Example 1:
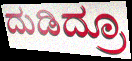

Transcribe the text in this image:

ದುಡಿದ್ರೂ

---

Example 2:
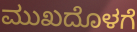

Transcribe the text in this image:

ಮುಖದೊಳಗೆ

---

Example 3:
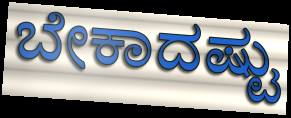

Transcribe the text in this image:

ಬೇಕಾದಷ್ಟು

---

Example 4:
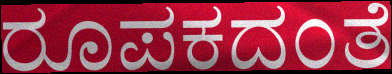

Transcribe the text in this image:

ರೂಪಕದಂತೆ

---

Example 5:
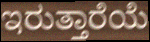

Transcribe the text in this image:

ಇರುತ್ತಾರೆಯೆ